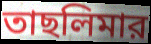
তাছলিমার